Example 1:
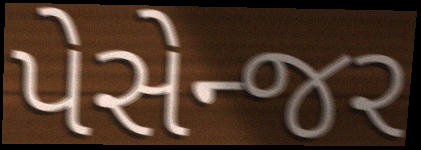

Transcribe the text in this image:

પેસેન્જર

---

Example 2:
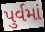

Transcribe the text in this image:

પુર્વમાં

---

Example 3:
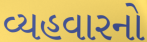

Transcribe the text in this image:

વ્યહવારનો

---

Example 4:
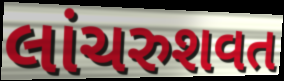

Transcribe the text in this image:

લાંચરુશવત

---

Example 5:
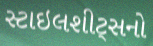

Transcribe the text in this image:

સ્ટાઇલશીટ્સનો